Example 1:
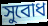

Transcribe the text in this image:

সুবোধ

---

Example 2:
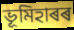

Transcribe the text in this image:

ভূমিহাৰৰ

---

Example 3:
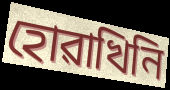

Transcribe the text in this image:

হোৱাখিনি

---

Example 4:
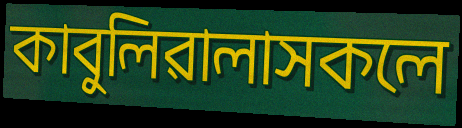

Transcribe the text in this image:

কাবুলিৱালাসকলে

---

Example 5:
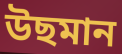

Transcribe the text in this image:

উছমান